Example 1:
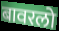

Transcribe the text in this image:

बावरलो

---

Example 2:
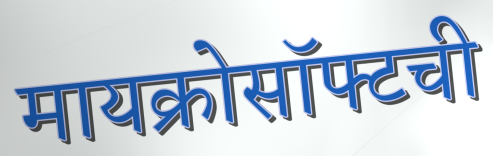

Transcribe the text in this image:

मायक्रोसॉफ्टची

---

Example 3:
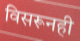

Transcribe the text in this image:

विसरूनही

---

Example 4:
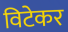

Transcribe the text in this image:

विटेकर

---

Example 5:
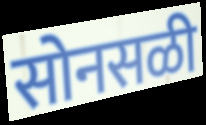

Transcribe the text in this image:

सोनसळी